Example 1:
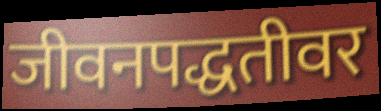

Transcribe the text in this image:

जीवनपद्धतीवर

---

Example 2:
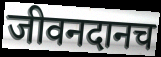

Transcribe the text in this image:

जीवनदानच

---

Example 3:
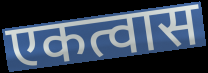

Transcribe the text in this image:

एकत्वास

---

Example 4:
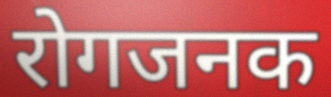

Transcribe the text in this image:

रोगजनक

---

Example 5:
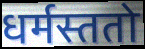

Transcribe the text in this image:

धर्मस्ततो